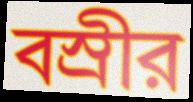
বস্রীর